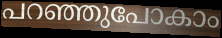
പറഞ്ഞുപോകാം